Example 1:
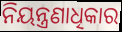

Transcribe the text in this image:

ନିୟନ୍ତ୍ରଣାଧିକାର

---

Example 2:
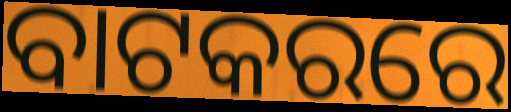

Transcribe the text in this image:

ବାଟକରରେ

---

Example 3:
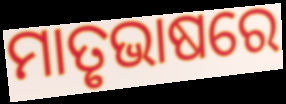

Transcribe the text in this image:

ମାତୃଭାଷରେ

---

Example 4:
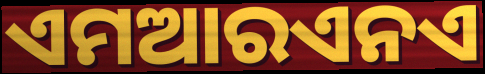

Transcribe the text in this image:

ଏମଆରଏନଏ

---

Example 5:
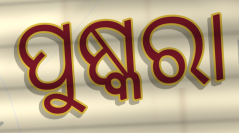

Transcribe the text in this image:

ପୁଷ୍କରା